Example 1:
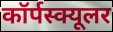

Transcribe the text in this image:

कॉर्पस्क्यूलर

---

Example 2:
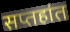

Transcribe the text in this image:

सप्तहांत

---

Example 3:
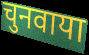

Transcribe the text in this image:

चुनवाया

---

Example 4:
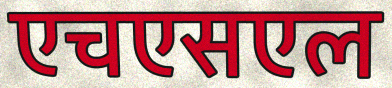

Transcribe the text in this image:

एचएसएल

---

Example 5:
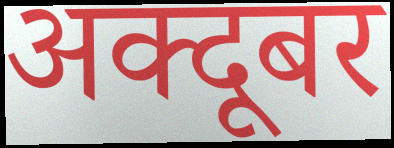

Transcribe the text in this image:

अक्दूबर